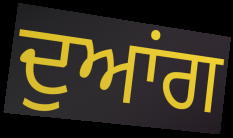
ਦੁਆਂਗ